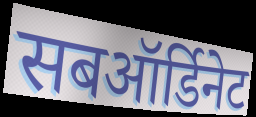
सबऑर्डिनेट